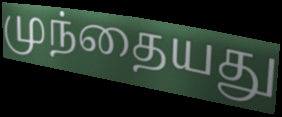
முந்தையது